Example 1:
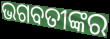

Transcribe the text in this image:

ଭଗବତୀଙ୍କର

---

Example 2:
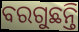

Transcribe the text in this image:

ବରଗୁଛନ୍ତି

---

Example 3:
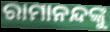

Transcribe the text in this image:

ରାମାନନ୍ଦଙ୍କୁ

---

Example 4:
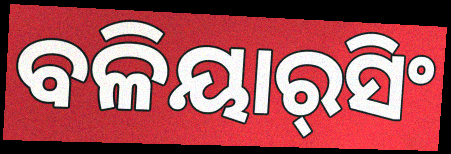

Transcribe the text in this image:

ବଳିୟାର୍‌ସିଂ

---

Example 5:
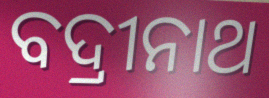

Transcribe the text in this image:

ବଦ୍ରୀନାଥ